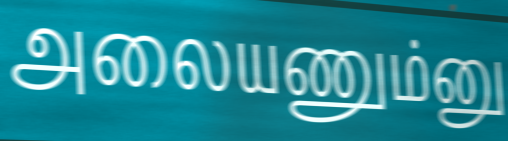
அலையணும்னு